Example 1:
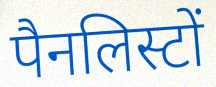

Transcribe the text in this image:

पैनलिस्टों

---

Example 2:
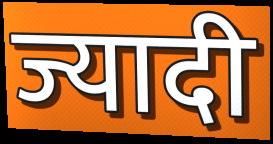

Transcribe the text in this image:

ज्यादी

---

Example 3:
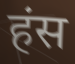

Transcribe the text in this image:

हंस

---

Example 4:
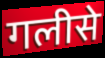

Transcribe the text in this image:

गलीसे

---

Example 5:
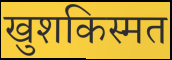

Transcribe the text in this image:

खुशकिस्मत